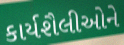
કાર્યશૈલીઓને